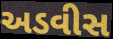
અડવીસ